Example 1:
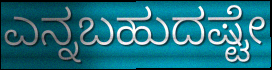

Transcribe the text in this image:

ಎನ್ನಬಹುದಷ್ಟೇ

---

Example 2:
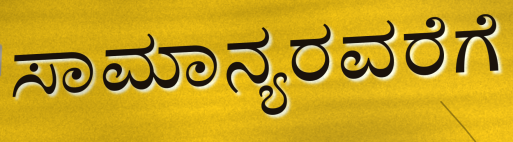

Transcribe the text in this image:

ಸಾಮಾನ್ಯರವರೆಗೆ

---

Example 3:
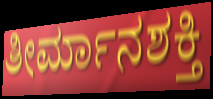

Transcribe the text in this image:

ತೀರ್ಮಾನಶಕ್ತಿ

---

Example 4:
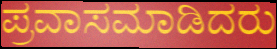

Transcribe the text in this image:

ಪ್ರವಾಸಮಾಡಿದರು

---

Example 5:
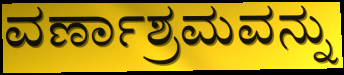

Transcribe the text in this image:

ವರ್ಣಾಶ್ರಮವನ್ನು